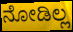
ನೋಡಿಲ್ಲ